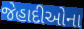
જેહાદીઓના